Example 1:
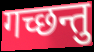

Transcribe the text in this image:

गच्छन्तु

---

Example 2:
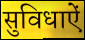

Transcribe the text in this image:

सुविधाऐं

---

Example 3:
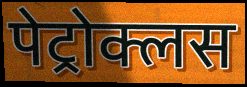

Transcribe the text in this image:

पेट्रोक्लस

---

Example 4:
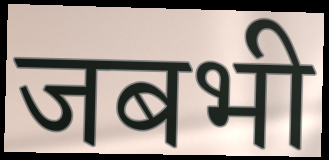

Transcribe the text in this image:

जबभी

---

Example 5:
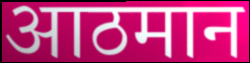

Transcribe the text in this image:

आठमान